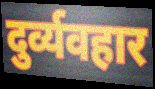
दुर्व्यवहार